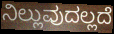
ನಿಲ್ಲುವುದಲ್ಲದೆ